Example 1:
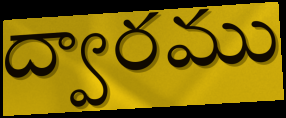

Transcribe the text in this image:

ద్వారము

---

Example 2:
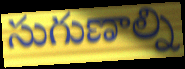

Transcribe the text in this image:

సుగుణాల్ని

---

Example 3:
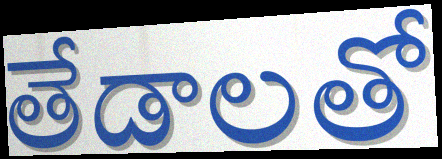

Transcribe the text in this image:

తేడాలతో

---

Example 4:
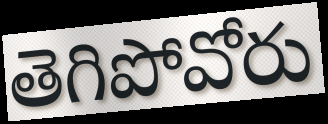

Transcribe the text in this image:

తెగిపోవోరు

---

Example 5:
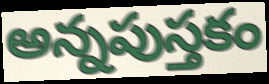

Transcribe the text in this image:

అన్నపుస్తకం